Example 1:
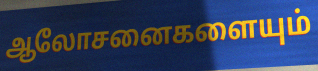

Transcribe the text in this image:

ஆலோசனைகளையும்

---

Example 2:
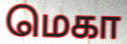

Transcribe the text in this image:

மெகா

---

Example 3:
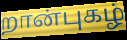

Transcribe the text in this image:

றான்புகழ்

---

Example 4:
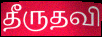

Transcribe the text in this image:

தீருதவி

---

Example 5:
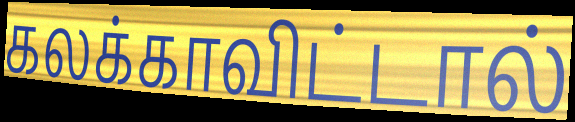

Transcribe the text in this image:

கலக்காவிட்டால்